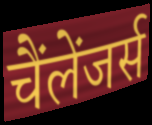
चैंलेंजर्स